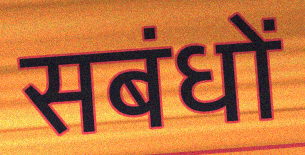
सबंधों